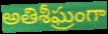
అతిశీఘ్రంగా